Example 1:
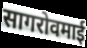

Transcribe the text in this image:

सागरोवमाई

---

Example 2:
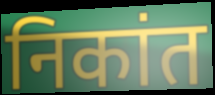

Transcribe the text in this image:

निकांत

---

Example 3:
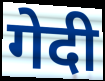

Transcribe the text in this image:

गेदी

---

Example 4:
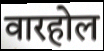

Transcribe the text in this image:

वारहोल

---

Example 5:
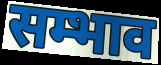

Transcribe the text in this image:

सम्भाव